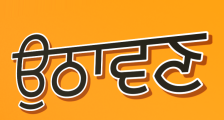
ਉਠਾਵਣ